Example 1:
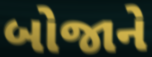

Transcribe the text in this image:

બોજાને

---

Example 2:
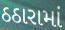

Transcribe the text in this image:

ઠઠારામાં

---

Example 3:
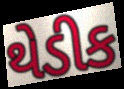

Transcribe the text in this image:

થેડીક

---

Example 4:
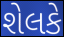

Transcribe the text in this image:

શેલકે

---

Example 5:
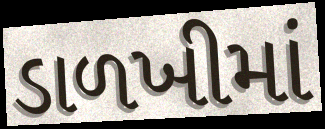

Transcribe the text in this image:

ડાળખીમાં